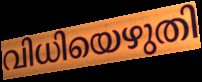
വിധിയെഴുതി